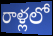
రాళ్లలో